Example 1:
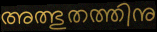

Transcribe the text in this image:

അത്ഭുതത്തിനു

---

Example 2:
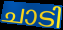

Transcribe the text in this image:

ചാടി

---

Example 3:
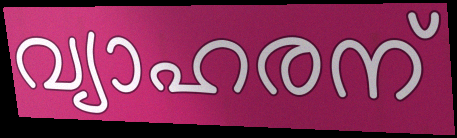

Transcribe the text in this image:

വ്യാഹരന്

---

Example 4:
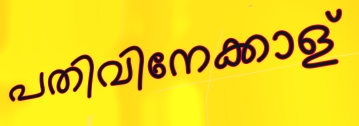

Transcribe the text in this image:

പതിവിനേക്കാള്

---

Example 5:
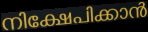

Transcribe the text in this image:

നിക്ഷേപിക്കാൻ